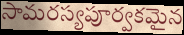
సామరస్యపూర్వకమైన